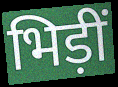
भिड़ीं